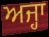
ਅਜ੍ਹਾ